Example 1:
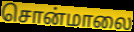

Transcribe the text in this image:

சொன்மாலை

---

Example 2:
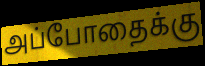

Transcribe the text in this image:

அப்போதைக்கு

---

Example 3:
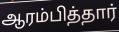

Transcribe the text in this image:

ஆரம்பித்தார்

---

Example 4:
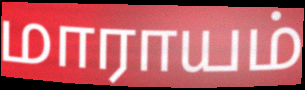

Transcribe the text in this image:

மாராயம்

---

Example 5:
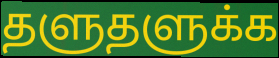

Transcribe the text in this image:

தளுதளுக்க